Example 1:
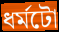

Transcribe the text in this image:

ধৰ্মটো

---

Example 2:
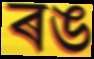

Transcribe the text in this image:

ৰঙ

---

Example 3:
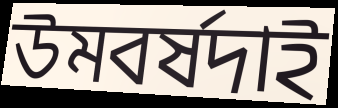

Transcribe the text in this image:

উমবৰ্ষদাই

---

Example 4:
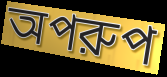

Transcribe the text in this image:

অপৰুপ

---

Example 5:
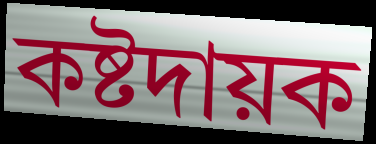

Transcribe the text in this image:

কষ্টদায়ক